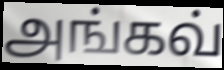
அங்கவ்